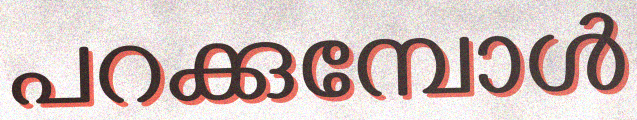
പറക്കുമ്പോൾ